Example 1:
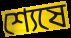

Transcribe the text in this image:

শ্যেষে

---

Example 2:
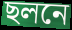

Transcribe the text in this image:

ছলনে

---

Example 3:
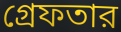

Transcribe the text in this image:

গ্রেফতার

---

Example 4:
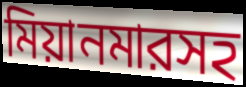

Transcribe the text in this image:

মিয়ানমারসহ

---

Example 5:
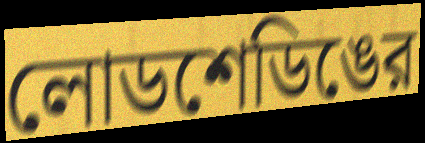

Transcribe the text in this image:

লোডশেডিঙের